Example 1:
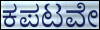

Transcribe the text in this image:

ಕಪಟವೇ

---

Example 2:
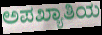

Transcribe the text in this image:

ಅಪಖ್ಯಾತಿಯ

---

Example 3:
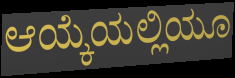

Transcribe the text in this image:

ಆಯ್ಕೆಯಲ್ಲಿಯೂ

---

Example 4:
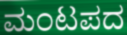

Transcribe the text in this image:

ಮಂಟಪದ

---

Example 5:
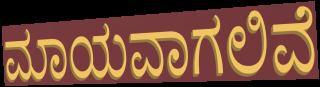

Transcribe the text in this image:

ಮಾಯವಾಗಲಿವೆ